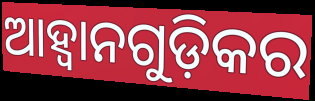
ଆହ୍ଵାନଗୁଡ଼ିକର